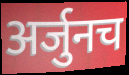
अर्जुनच